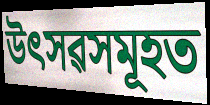
উৎসৱসমূহত